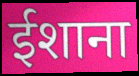
ईशाना